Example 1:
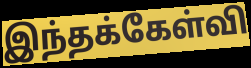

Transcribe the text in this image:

இந்தக்கேள்வி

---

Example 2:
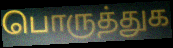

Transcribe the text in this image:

பொருத்துக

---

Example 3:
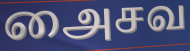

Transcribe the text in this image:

அைசவ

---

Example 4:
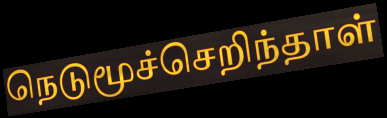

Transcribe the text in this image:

நெடுமூச்செறிந்தாள்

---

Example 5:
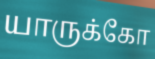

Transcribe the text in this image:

யாருக்கோ